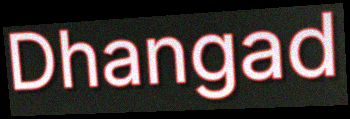
Dhangad